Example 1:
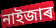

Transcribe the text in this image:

নাইজাৰ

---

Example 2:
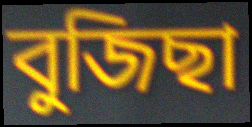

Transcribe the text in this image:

বুজিছা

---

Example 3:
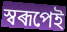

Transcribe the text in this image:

স্বৰূপেই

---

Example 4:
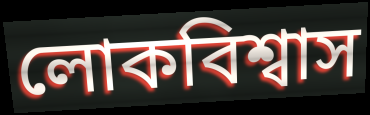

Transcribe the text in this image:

লোকবিশ্বাস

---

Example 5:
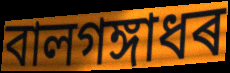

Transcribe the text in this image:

বালগঙ্গাধৰ